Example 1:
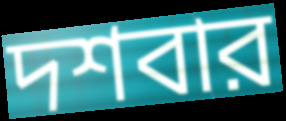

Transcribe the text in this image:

দশবার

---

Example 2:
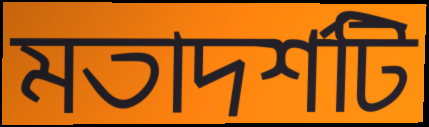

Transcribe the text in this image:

মতাদর্শটি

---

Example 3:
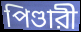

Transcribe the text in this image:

পিণ্ডারী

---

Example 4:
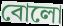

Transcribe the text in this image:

বোলো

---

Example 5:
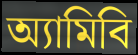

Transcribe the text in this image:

অ্যামিবি